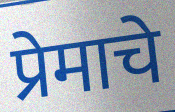
प्रेमाचे